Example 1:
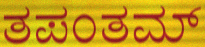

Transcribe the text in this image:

ತಪಂತಮ್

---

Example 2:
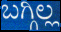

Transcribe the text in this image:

ಬಗ್ಗಿಲ್ಲ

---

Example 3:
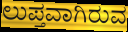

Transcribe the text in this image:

ಲುಪ್ತವಾಗಿರುವ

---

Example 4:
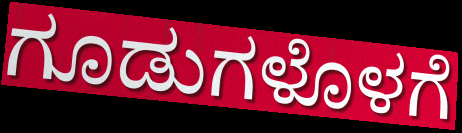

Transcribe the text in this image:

ಗೂಡುಗಳೊಳಗೆ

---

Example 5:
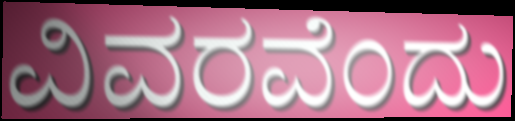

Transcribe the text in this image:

ವಿವರವೆಂದು